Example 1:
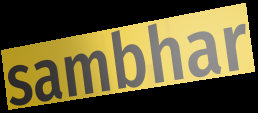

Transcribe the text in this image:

sambhar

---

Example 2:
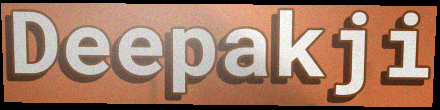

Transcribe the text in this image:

Deepakji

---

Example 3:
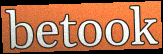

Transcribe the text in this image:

betook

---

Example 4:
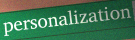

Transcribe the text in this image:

personalization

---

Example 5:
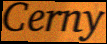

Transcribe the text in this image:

Cerny